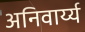
अनिवार्य्य